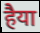
हैया